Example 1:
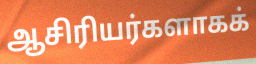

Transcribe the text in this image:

ஆசிரியர்களாகக்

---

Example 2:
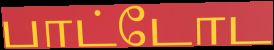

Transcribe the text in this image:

பாட்டோட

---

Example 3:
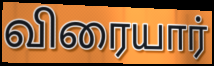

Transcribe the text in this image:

விரையார்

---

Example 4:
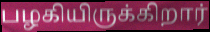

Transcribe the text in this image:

பழகியிருக்கிறார்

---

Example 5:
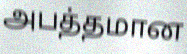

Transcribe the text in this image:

அபத்தமான